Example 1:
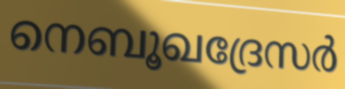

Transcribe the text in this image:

നെബൂഖദ്രേസർ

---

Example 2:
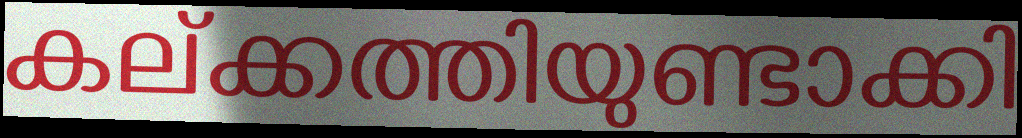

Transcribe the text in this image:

കല്ക്കത്തിയുണ്ടാക്കി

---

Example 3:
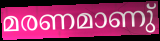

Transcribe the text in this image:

മരണമാണു്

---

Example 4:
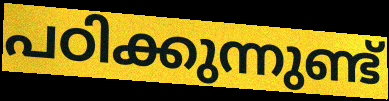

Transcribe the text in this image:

പഠിക്കുന്നുണ്ട്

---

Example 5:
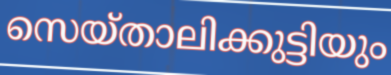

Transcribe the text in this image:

സെയ്താലിക്കുട്ടിയും